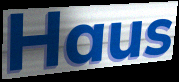
Haus